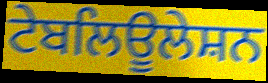
ਟੇਬਲਿਊਲੇਸ਼ਨ